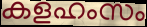
കളഹംസം